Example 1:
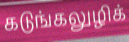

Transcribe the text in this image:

கடுங்கலுழிக்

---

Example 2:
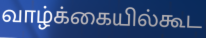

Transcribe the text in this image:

வாழ்க்கையில்கூட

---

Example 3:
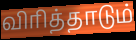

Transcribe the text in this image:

விரித்தாடும்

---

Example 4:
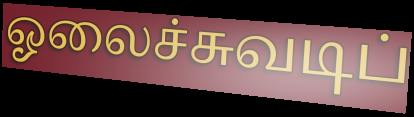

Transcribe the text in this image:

ஓலைச்சுவடிப்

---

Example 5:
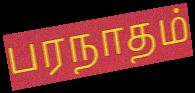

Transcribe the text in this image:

பரநாதம்